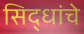
सिद्धांचे